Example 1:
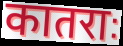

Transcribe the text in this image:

कातराः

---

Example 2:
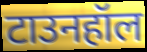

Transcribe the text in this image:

टाउनहॉल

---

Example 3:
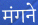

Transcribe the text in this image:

मंगने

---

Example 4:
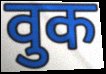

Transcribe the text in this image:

वुक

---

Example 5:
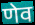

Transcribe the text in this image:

णेव